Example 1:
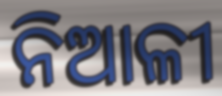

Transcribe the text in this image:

ନିଆଳୀ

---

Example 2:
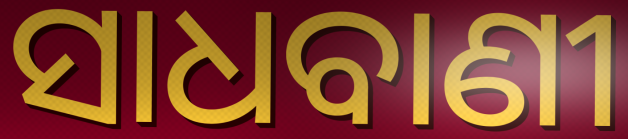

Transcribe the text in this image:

ସାଧବାଣୀ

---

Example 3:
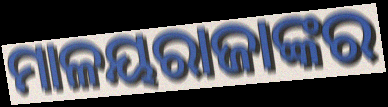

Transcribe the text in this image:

ମାଳୟରାଜାଙ୍କର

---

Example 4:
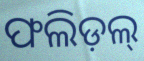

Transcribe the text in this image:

ଫଲିଡ଼ଲ୍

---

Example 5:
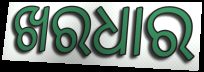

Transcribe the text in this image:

ଖରଧାର